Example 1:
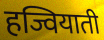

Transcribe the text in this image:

हज्वियाती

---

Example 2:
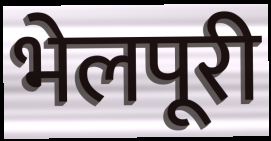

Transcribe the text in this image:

भेलपूरी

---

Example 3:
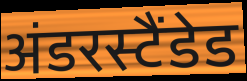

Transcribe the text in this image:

अंडरस्टैंडेड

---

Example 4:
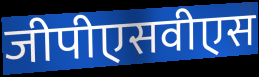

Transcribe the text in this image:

जीपीएसवीएस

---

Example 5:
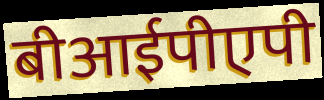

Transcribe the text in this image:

बीआईपीएपी